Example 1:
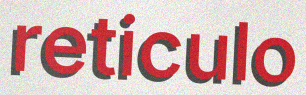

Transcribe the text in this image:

reticulo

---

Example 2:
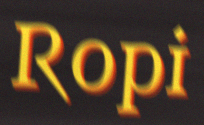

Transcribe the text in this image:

Ropi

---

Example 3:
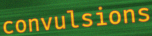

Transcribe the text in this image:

convulsions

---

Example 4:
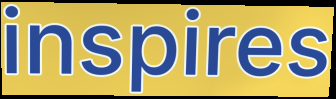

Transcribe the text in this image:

inspires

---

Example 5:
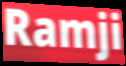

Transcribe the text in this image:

Ramji